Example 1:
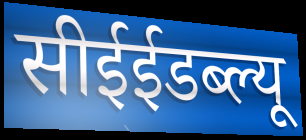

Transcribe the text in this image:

सीईईडब्ल्यू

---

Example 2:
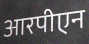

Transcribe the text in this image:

आरपीएन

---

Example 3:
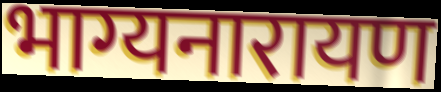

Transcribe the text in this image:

भाग्यनारायण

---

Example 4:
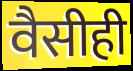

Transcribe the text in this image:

वैसीही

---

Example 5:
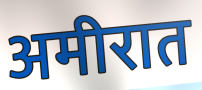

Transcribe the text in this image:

अमीरात